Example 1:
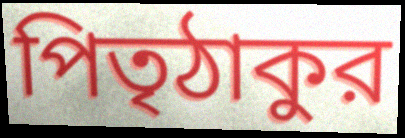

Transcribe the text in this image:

পিতৃঠাকুর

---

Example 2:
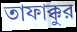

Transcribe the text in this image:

তাফাক্কুর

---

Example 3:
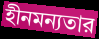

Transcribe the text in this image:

হীনমন্যতার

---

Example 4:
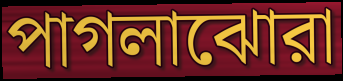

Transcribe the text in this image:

পাগলাঝোরা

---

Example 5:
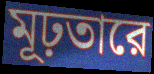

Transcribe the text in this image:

মূঢ়তারে